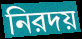
নিরদয়